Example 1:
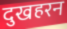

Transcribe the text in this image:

दुखहरन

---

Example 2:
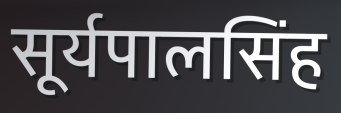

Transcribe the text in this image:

सूर्यपालसिंह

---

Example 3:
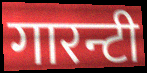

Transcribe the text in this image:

गारन्टी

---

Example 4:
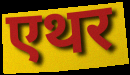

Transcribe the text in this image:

एथर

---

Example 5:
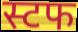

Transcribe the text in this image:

स्टफ